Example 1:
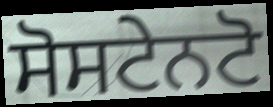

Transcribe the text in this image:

ਸੋਸਟੇਨਟੋ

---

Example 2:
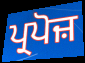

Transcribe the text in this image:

ਪ੍ਰਪੋਜ਼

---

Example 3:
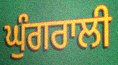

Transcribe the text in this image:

ਘੁੰਗਰਾਲੀ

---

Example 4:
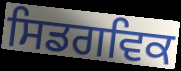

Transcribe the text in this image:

ਸਿਡਗਵਿਕ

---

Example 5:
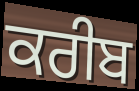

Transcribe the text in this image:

ਕਰੀਬ